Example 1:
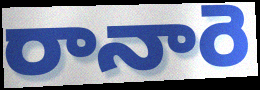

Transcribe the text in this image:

రానారె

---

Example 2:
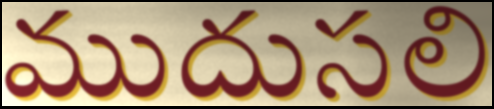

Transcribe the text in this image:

ముదుసలి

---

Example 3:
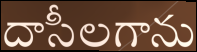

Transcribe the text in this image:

దాసీలగాను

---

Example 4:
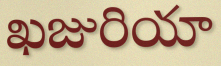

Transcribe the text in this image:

ఖజురియా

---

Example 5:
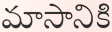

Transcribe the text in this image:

మాసానికి